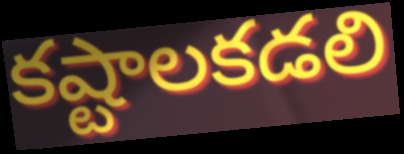
కష్టాలకడలి